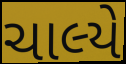
ચાલ્યે